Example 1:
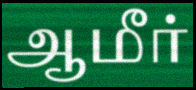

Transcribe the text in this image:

ஆமீர்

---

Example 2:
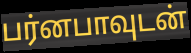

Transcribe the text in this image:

பர்னபாவுடன்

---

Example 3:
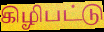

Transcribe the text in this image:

கிழிபட்டு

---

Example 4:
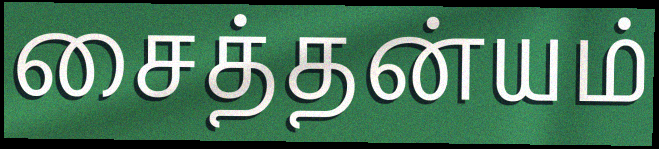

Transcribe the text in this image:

சைத்தன்யம்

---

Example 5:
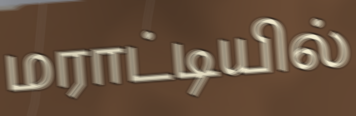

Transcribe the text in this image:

மராட்டியில்